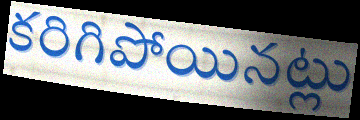
కరిగిపోయినట్లు